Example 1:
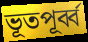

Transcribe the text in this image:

ভূতপূর্ব্ব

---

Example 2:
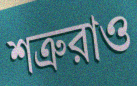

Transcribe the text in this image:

শত্রুরাও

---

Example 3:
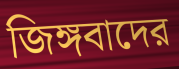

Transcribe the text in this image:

জিঙ্গবাদের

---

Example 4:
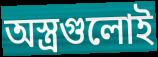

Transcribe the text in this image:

অস্ত্রগুলোই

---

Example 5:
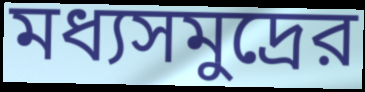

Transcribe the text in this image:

মধ্যসমুদ্রের